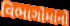
વિભાગોમાંનો